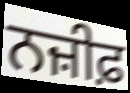
ਨਜ਼ੀਫ਼